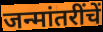
जन्मांतरींचें